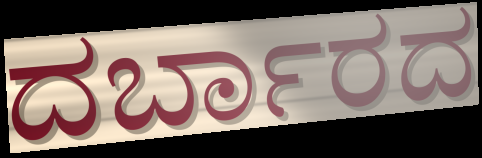
ದರ್ಬಾರದ